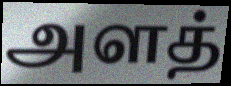
அளத்